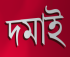
দমাই